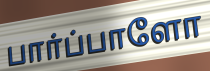
பார்ப்பாளோ